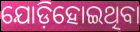
ଯୋଡ଼ିହୋଇଥିବା